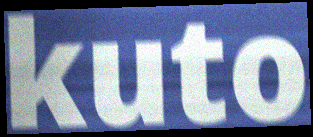
kuto